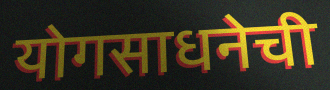
योगसाधनेची